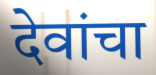
देवांचा